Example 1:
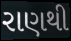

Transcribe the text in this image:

રાણથી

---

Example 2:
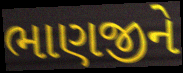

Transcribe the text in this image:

ભાણજીને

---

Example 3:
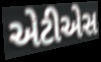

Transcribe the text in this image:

એટીએસ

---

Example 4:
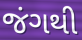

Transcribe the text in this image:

જંગથી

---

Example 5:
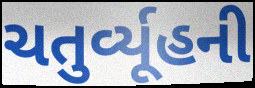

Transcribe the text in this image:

ચતુર્વ્યૂહની